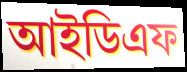
আইডিএফ